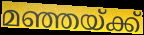
മഞ്ഞയ്ക്ക്